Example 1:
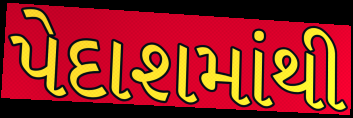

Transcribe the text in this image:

પેદાશમાંથી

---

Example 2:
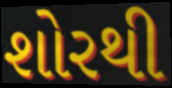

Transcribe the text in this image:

શોરથી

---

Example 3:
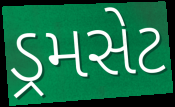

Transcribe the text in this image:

ડ્રમસેટ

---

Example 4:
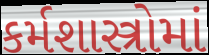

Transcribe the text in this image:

કર્મશાસ્ત્રોમાં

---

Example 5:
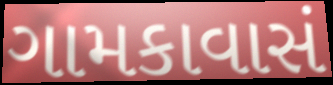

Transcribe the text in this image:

ગામકાવાસં